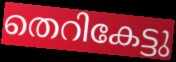
തെറികേട്ടു